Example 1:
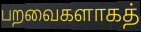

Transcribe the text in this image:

பறவைகளாகத்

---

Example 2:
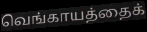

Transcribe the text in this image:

வெங்காயத்தைக்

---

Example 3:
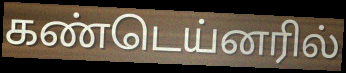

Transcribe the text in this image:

கண்டெய்னரில்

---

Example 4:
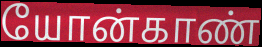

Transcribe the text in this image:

யோன்காண்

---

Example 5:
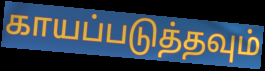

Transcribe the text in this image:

காயப்படுத்தவும்